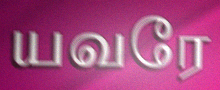
யவரே